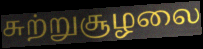
சுற்றுசூழலை